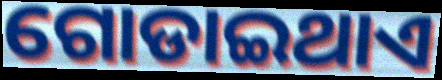
ଗୋଡାଇଥାଏ